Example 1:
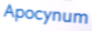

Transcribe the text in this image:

Apocynum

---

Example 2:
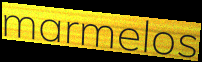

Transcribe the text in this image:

marmelos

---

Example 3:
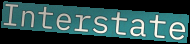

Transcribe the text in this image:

Interstate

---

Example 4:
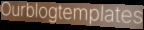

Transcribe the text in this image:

Ourblogtemplates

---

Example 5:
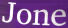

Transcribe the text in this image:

Jone